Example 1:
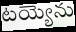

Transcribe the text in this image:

టయ్యెను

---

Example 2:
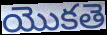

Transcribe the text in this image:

యొకతె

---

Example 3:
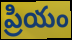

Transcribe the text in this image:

ప్రియం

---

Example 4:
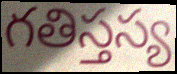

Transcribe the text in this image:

గతిస్తస్య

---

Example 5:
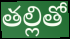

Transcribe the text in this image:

తల్లితో